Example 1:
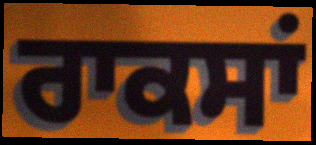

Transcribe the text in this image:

ਰਾਕਸਾਂ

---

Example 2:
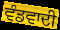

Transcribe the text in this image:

ਵੰਡਵਾਦੀ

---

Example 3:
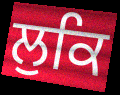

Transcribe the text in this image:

ਲੁਕਿ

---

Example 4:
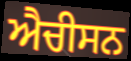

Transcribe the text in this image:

ਐਚੀਸਨ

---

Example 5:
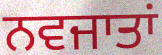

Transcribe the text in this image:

ਨਵਜਾਤਾਂ